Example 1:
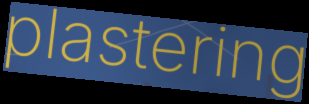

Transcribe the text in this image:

plastering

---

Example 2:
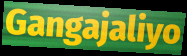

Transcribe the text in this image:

Gangajaliyo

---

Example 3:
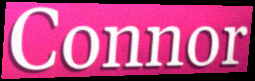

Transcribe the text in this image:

Connor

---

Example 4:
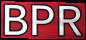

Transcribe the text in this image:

BPR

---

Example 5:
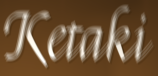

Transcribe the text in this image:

Ketaki